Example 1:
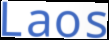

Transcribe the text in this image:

Laos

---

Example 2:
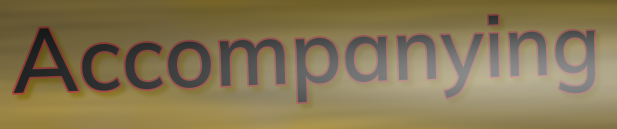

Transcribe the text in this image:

Accompanying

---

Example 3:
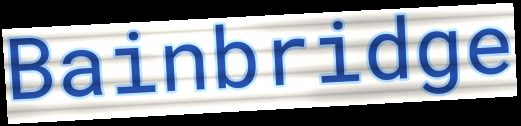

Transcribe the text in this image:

Bainbridge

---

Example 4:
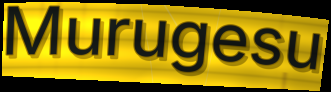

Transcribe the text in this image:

Murugesu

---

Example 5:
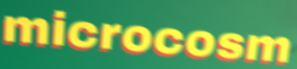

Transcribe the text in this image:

microcosm